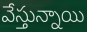
వేస్తున్నాయి